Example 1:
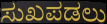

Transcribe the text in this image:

ಸುಖಪಡಲು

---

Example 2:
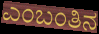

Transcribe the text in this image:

ಎಂಬಂತಿನ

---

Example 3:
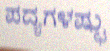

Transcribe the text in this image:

ಪದ್ಯಗಳಷ್ಟು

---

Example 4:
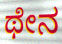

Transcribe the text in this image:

ಥೇನ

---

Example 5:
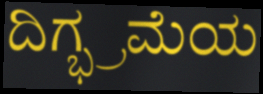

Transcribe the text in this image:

ದಿಗ್ಭ್ರಮೆಯ